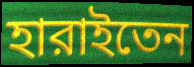
হারাইতেন